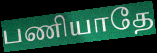
பணியாதே